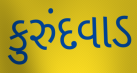
કુરુંદવાડ